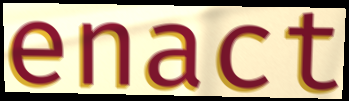
enact